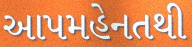
આપમહેનતથી